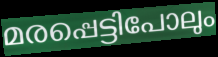
മരപ്പെട്ടിപോലും